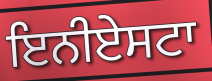
ਇਨੀਏਸਟਾ